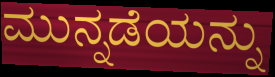
ಮುನ್ನಡೆಯನ್ನು